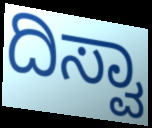
ದಿಸ್ವಾ